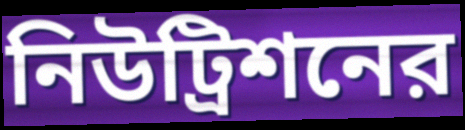
নিউট্রিশনের